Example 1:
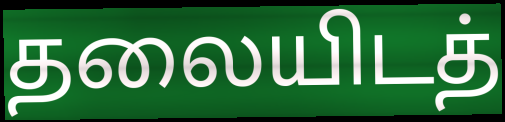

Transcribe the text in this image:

தலையிடத்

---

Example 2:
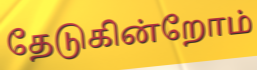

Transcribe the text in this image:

தேடுகின்றோம்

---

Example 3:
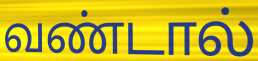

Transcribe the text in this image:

வண்டால்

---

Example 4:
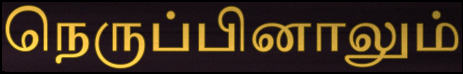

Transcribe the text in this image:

நெருப்பினாலும்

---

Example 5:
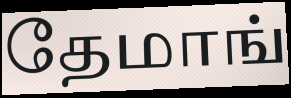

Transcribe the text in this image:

தேமாங்